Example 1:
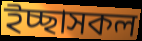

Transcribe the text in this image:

ইচ্ছাসকল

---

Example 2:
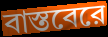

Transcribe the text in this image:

বাস্তবেরে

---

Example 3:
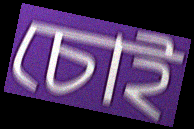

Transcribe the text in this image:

চোই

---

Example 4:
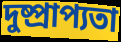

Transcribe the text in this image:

দুষ্প্রাপ্যতা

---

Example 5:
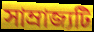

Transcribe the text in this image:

সাম্রাজ্যটি